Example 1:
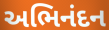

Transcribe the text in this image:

અભિનંદન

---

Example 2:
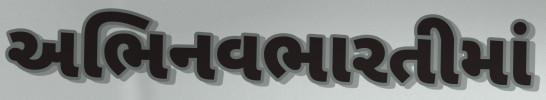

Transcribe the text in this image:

અભિનવભારતીમાં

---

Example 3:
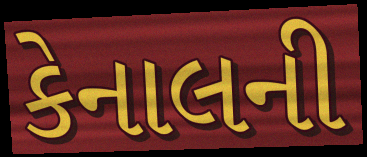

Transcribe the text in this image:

કેનાલની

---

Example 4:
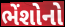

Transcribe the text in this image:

ભેંશોનો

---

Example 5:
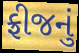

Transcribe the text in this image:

ફ્રીજનું